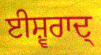
ਈਸ਼੍ਵਰਾਦ੍